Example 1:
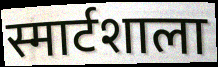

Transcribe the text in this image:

स्मार्टशाला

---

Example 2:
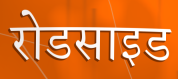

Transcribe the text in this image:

रोडसाइड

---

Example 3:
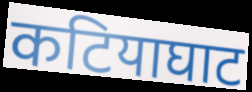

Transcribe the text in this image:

कटियाघाट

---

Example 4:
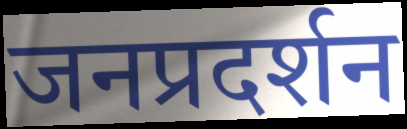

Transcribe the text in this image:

जनप्रदर्शन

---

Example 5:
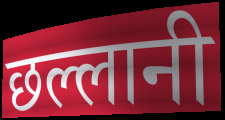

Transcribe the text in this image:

छल्लानी